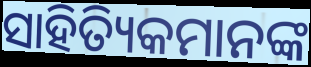
ସାହିତ୍ୟିକମାନଙ୍କ